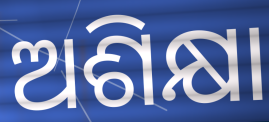
ଅଶିକ୍ଷା